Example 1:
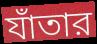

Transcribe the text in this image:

যাঁতার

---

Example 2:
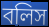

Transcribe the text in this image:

বলিস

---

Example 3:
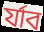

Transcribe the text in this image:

র্যাব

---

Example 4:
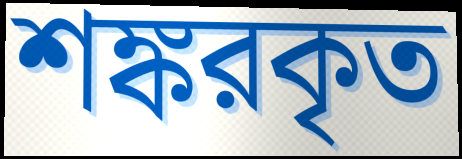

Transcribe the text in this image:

শঙ্করকৃত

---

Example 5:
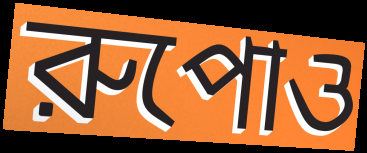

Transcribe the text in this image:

রুপোও